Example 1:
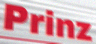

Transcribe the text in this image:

Prinz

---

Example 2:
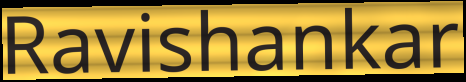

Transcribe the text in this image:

Ravishankar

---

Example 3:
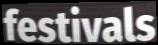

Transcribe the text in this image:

festivals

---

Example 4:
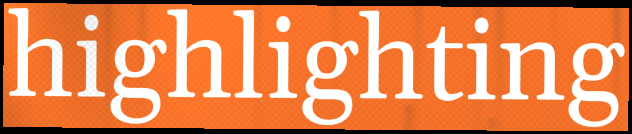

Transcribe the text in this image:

highlighting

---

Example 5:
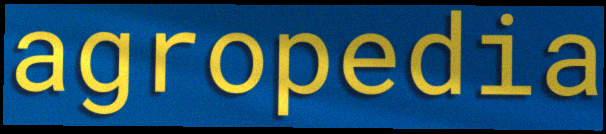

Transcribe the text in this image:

agropedia